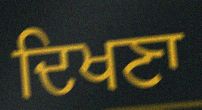
ਦਿਖਣਾ